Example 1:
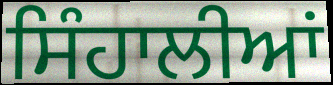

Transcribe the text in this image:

ਸਿੰਹਾਲੀਆਂ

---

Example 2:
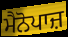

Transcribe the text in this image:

ਮੈਨੋਪਾਜ਼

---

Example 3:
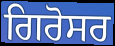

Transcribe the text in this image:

ਗਿਰੋਸਰ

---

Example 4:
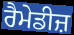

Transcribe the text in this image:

ਰੈਮੇਡੀਜ਼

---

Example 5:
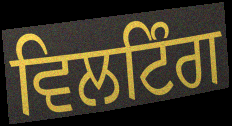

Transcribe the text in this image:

ਵਿਲਟਿੰਗ